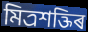
মিত্ৰশক্তিৰ